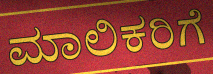
ಮಾಲಿಕರಿಗೆ